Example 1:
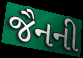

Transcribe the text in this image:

જૈનની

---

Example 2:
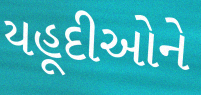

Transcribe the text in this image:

યહૂદીઓને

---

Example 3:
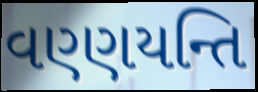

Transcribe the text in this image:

વણ્ણયન્તિ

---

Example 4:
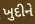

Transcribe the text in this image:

ખુદીને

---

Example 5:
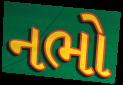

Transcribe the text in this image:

નભો